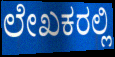
ಲೇಖಕರಲ್ಲಿ